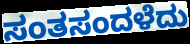
ಸಂತಸಂದಳೆದು